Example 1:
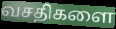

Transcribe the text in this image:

வசதிகளை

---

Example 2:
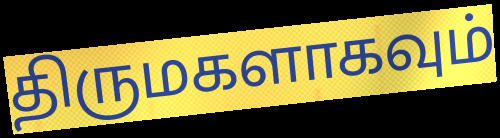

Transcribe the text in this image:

திருமகளாகவும்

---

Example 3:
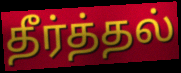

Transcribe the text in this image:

தீர்த்தல்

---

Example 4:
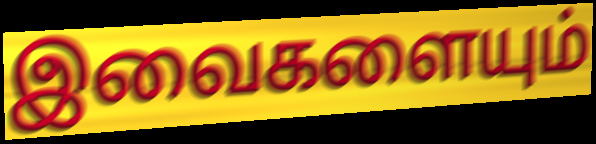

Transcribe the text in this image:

இவைகளையும்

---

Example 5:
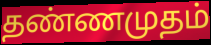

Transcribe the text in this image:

தண்ணமுதம்